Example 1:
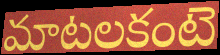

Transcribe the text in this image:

మాటలకంటె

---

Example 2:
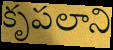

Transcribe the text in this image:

కృపలాని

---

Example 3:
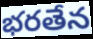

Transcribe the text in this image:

భరతేన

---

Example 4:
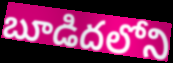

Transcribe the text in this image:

బూడిదలోని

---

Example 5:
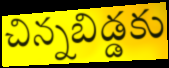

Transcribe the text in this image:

చిన్నబిడ్డకు